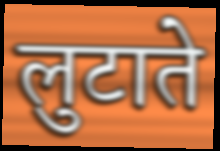
लुटाते